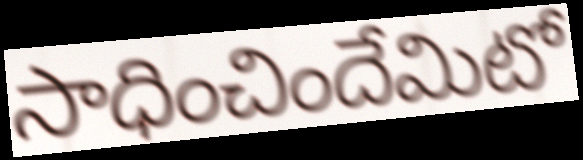
సాధించిందేమిటో